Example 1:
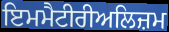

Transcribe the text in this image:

ਇਮਮੈਟੀਰੀਅਲਿਜ਼ਮ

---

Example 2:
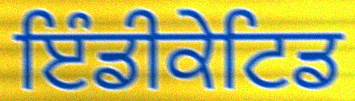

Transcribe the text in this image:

ਇੰਡੀਕੇਟਿਡ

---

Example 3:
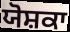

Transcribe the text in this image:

ਯੋਸ਼ਕਾ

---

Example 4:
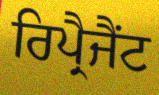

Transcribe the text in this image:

ਰਿਪ੍ਰੈਜੈਂਟ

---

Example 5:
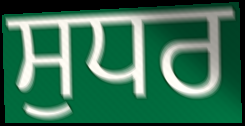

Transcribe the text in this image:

ਸੁਧਰ